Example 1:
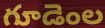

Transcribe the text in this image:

గూడెంల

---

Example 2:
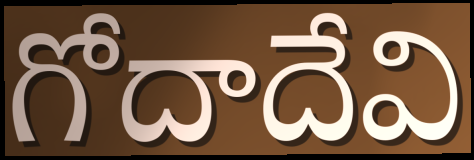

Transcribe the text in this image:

గోదాదేవి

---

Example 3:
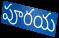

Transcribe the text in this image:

పూరయ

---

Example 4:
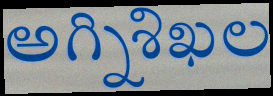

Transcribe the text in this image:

అగ్నిశిఖల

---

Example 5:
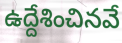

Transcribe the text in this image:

ఉద్దేశించినవే